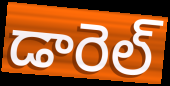
డారెల్